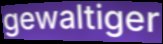
gewaltiger